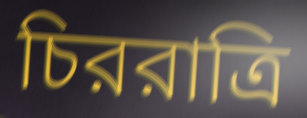
চিররাত্রি